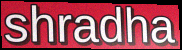
shradha